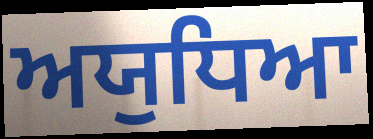
ਅਯੁਧਿਆ